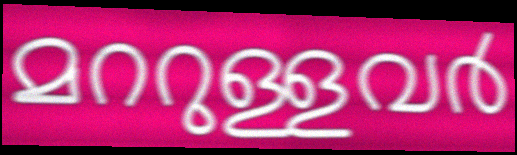
മററുള്ളവർ